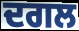
ਦਗਲ